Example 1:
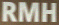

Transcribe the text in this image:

RMH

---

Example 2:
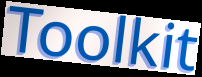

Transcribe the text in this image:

Toolkit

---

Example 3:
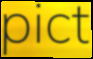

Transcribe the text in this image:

pict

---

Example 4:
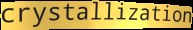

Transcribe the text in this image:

crystallization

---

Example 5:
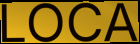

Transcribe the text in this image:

LOCA